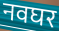
नवघर